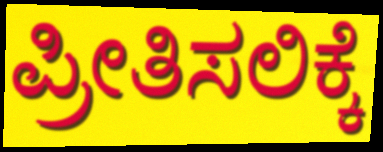
ಪ್ರೀತಿಸಲಿಕ್ಕೆ